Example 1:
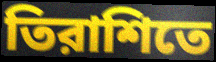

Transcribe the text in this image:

তিরাশিতে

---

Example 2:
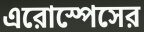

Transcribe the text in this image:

এরোস্পেসের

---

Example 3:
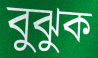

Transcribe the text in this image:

বুঝুক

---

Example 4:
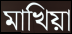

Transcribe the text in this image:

মাখিয়া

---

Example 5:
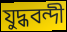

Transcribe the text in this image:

যুদ্ধবন্দী